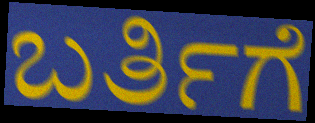
ಬರ್ತಿಗೆ